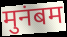
मुनंबम